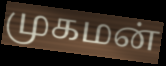
முகமன்